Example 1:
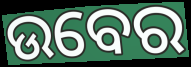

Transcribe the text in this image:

ଉବେର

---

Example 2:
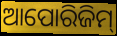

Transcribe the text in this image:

ଆପୋରିଜିମ୍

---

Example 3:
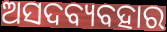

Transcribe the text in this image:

ଅସଦବ୍ୟବହାର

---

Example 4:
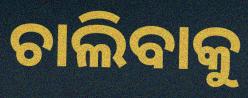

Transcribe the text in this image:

ଚାଲିବାକୁ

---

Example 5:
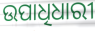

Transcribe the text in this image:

ଉପାଧିଧାରୀ